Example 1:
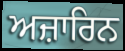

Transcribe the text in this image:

ਅਜ਼ਾਰਿਨ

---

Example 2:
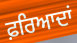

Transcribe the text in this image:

ਫ਼ਰਿਆਦਾਂ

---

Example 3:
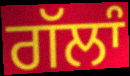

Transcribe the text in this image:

ਗੱਲਾੰ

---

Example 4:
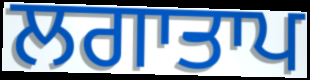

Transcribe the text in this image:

ਲਗਾਤਾਪ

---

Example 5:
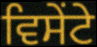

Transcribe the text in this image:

ਵਿਸੇਂਟੇ